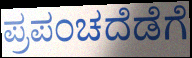
ಪ್ರಪಂಚದೆಡೆಗೆ